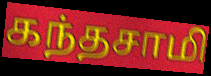
கந்தசாமி